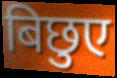
बिछुए